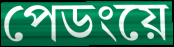
পেডংয়ে